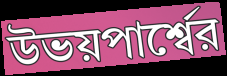
উভয়পার্শ্বের